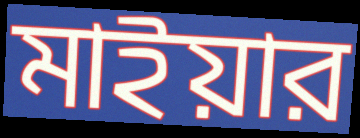
মাইয়ার